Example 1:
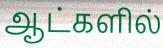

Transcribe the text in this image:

ஆட்களில்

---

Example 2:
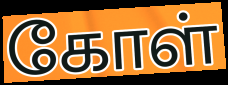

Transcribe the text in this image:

கோள்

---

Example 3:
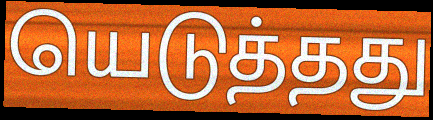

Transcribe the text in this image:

யெடுத்தது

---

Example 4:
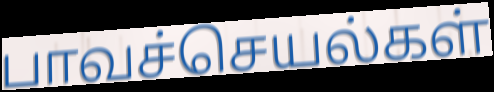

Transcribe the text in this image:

பாவச்செயல்கள்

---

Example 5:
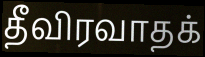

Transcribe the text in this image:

தீவிரவாதக்